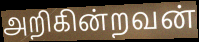
அறிகின்றவன்